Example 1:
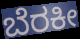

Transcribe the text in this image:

ಬೆರಕೀ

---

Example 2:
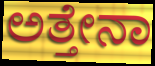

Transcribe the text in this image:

ಅತ್ತೇನಾ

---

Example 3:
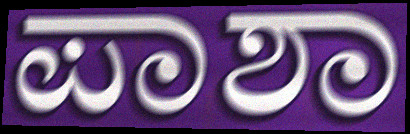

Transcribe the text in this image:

ಪಾಶಾ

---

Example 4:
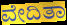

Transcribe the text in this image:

ವೇದಿತಾ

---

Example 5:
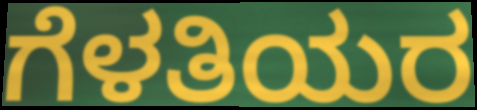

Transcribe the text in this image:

ಗೆಳತಿಯರ